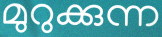
മുറുക്കുന്ന